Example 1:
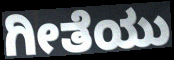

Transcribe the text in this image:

ಗೀತೆಯು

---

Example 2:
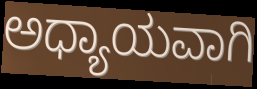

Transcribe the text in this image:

ಅಧ್ಯಾಯವಾಗಿ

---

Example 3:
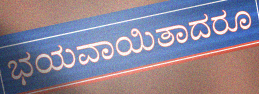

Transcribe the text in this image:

ಭಯವಾಯಿತಾದರೂ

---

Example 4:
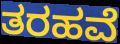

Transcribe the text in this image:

ತರಹವೆ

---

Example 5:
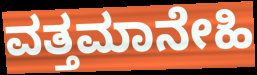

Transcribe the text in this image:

ವತ್ತಮಾನೇಹಿ